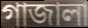
গাজালা